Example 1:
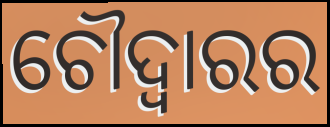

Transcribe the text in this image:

ଚୌଦ୍ୱାରର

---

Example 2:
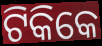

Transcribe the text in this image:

ଟିକିକେ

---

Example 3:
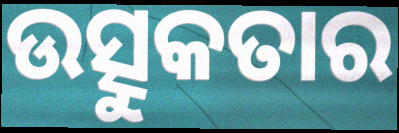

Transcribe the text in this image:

ଉତ୍ସୁକତାର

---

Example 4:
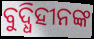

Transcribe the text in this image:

ବୁଦ୍ଧିହୀନଙ୍କ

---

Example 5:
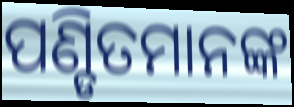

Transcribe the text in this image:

ପଣ୍ଡିତମାନଙ୍କ